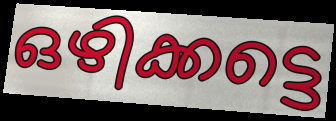
ഒഴിക്കട്ടെ